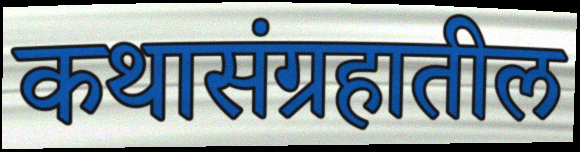
कथासंग्रहातील